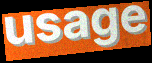
usage